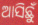
ଆସିଛୁଁ